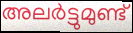
അലർട്ടുമുണ്ട്